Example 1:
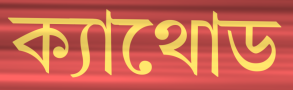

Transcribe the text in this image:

ক্যাথোড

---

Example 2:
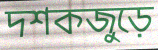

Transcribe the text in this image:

দশকজুড়ে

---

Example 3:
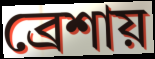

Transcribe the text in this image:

ব্রেশায়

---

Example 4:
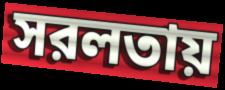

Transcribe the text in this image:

সরলতায়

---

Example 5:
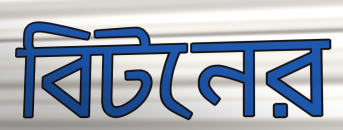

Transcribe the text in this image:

বিটনের